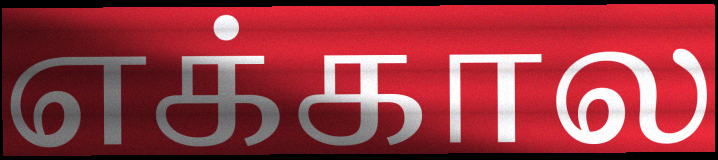
எக்கால